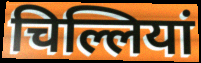
चिल्लियां